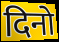
दिनो